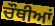
ਚੌਥੀਆਂ